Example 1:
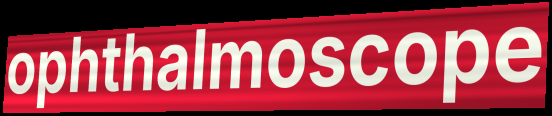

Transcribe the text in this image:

ophthalmoscope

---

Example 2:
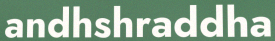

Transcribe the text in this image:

andhshraddha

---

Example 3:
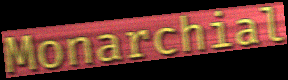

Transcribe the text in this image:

Monarchial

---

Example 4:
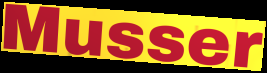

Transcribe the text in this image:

Musser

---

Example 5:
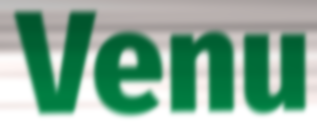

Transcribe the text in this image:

Venu